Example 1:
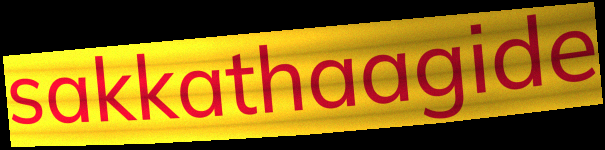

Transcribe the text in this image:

sakkathaagide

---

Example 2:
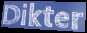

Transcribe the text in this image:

Dikter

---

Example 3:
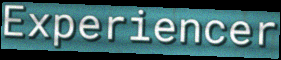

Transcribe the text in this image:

Experiencer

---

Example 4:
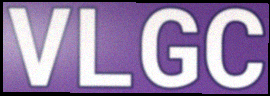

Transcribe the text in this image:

VLGC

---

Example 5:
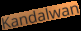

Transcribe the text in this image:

Kandalwan